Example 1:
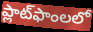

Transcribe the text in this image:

ప్లాట్‌ఫాంలలో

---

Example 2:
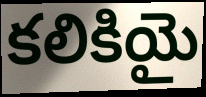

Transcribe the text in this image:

కలికియై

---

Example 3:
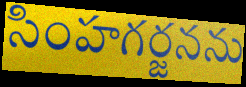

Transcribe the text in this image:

సింహగర్జనను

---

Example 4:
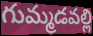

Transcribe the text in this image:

గుమ్మడవల్లి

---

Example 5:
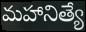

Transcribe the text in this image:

మహానిత్యే